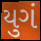
યુગં